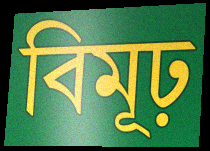
বিমূঢ়